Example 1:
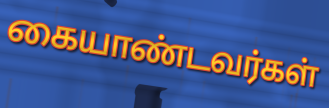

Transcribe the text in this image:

கையாண்டவர்கள்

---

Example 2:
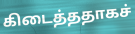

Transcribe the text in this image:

கிடைத்ததாகச்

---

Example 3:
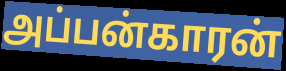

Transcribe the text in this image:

அப்பன்காரன்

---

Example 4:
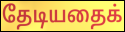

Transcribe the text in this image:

தேடியதைக்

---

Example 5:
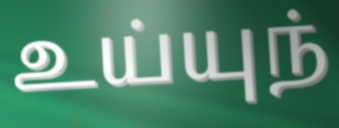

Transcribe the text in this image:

உய்யுந்